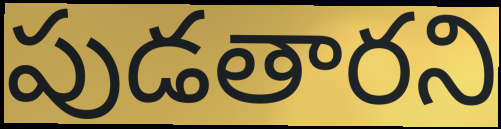
పుడతారని